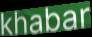
khabar